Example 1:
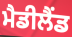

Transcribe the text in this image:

ਮੈਡੀਲੈਂਡ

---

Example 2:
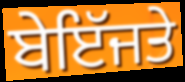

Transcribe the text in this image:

ਬੇਇੱਜਤੇ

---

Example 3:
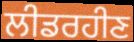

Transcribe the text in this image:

ਲੀਡਰਹੀਣ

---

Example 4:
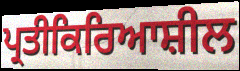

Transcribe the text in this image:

ਪ੍ਰਤੀਕਿਰਿਆਸ਼ੀਲ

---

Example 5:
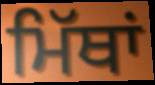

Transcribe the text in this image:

ਮਿੱਥਾਂ